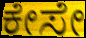
ಕೇಸೇ